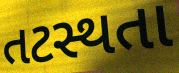
તટસ્થતા